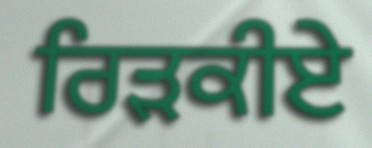
ਰਿੜਕੀਏ